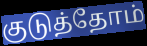
குடுத்தோம்